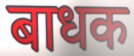
बाधक